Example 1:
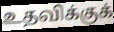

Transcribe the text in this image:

உதவிக்குக்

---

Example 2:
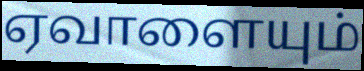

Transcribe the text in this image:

ஏவாளையும்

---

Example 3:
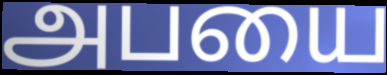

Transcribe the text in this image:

அபயை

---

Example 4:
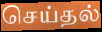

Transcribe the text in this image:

செய்தல்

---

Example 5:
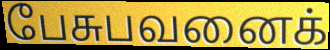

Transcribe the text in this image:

பேசுபவனைக்